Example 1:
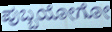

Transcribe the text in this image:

ಪುಬ್ಬಯೋಗೋ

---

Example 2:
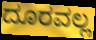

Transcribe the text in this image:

ದೂರವಲ್ಲ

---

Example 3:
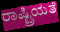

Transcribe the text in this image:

ರಾಷ್ಟ್ರಿಯತೆ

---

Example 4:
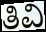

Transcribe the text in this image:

ತಿವಿ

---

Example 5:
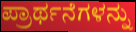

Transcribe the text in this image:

ಪ್ರಾರ್ಥನೆಗಳನ್ನು